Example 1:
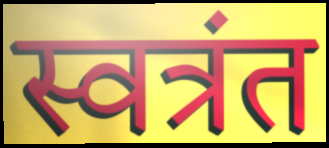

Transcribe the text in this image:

स्वत्रंत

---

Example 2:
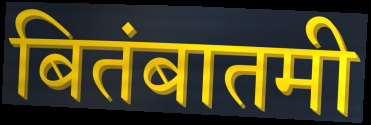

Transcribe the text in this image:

बितंबातमी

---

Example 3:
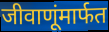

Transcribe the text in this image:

जीवाणूंमार्फत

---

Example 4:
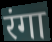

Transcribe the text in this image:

रंगा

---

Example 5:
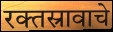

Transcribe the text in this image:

रक्तस्रावाचे